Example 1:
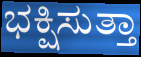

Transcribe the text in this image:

ಭಕ್ಷಿಸುತ್ತಾ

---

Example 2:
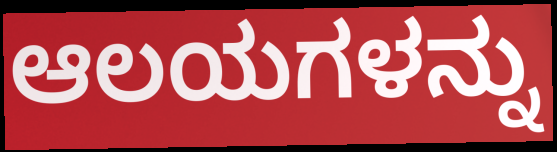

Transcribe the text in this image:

ಆಲಯಗಳನ್ನು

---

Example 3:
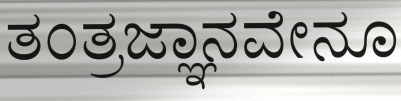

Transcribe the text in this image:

ತಂತ್ರಜ್ಞಾನವೇನೂ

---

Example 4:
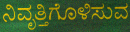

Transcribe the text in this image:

ನಿವೃತ್ತಿಗೊಳಿಸುವ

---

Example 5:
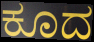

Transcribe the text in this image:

ಕೂದ